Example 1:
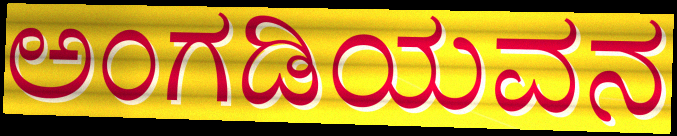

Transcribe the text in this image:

ಅಂಗಡಿಯವನ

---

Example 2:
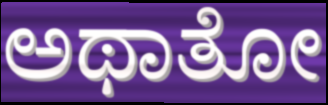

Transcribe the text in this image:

ಅಥಾತೋ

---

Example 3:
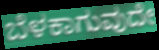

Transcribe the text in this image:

ಬೆಳಕಾಗುವುದೇ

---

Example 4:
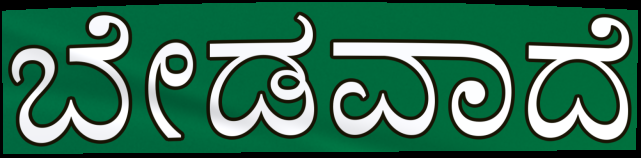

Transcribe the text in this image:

ಬೇಡವಾದೆ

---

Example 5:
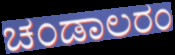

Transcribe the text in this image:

ಚಂಡಾಲರಂ